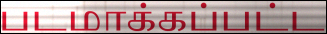
படமாக்கப்பட்ட